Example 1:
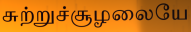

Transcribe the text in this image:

சுற்றுச்சூழலையே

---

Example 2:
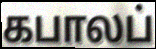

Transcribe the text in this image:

கபாலப்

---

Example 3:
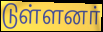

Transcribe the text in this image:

டுள்ளனர்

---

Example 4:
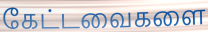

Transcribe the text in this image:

கேட்டவைகளை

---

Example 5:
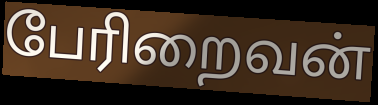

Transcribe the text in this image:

பேரிறைவன்